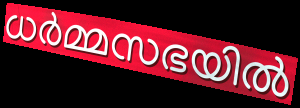
ധർമ്മസഭയിൽ